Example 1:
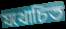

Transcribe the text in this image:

যথোচিত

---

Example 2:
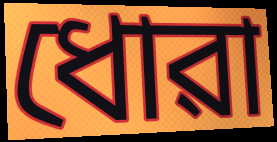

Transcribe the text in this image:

ধোৱা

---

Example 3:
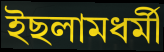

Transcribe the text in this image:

ইছলামধৰ্মী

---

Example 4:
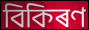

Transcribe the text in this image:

বিকিৰণ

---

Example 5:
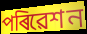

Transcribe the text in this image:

পৰিৱেশন